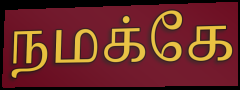
நமக்கே